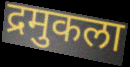
द्रमुकला